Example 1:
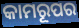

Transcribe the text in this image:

କାମରୂପର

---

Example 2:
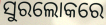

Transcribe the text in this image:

ସୁରଲୋକରେ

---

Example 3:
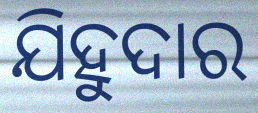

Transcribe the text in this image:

ଯିହୁଦାର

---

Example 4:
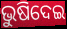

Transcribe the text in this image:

ଭୁଷିଦେଇ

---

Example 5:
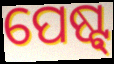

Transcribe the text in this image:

ପେଷ୍ଟ୍